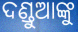
ଦଣ୍ଡୁଆଙ୍କୁ